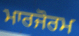
ਮਾਰਜੋਰਮ